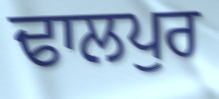
ਢਾਲਪੁਰ